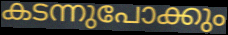
കടന്നുപോക്കും